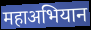
महाअभियान